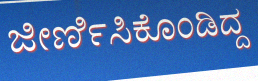
ಜೀರ್ಣಿಸಿಕೊಂಡಿದ್ದ